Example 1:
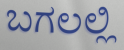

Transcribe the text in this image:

ಬಗಲಲ್ಲಿ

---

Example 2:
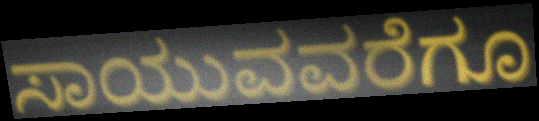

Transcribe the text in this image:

ಸಾಯುವವರೆಗೂ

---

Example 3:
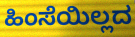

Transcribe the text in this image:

ಹಿಂಸೆಯಿಲ್ಲದ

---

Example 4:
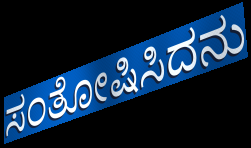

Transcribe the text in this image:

ಸಂತೋಷಿಸಿದನು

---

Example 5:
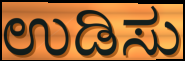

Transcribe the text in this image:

ಉಡಿಸು